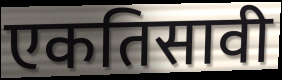
एकतिसावी